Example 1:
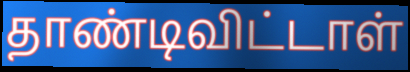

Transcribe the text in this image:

தாண்டிவிட்டாள்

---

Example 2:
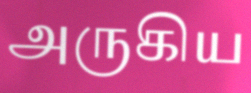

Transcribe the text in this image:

அருகிய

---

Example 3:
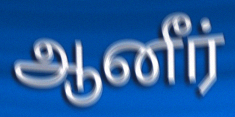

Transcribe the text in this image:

ஆனீர்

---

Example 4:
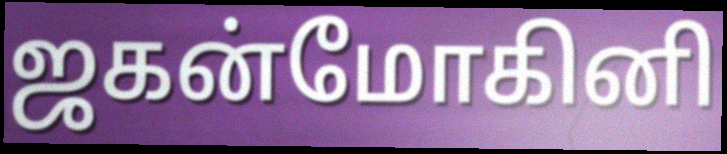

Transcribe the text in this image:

ஜகன்மோகினி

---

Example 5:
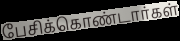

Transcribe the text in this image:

பேசிக்கொண்டார்கள்